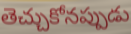
తెచ్చుకోనప్పుడు